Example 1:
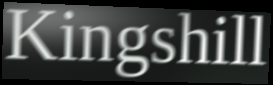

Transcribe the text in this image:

Kingshill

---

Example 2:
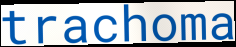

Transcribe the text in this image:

trachoma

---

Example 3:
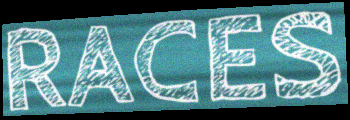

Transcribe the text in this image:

RACES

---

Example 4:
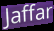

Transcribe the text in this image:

Jaffar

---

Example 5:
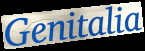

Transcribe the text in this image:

Genitalia